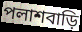
পলাশবাড়ি